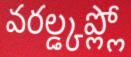
వరల్డ్కప్ల్లో